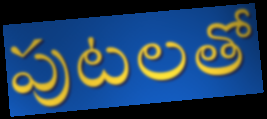
పుటలతో